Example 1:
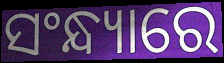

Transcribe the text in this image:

ସଂନ୍ଧ୍ଯାରେ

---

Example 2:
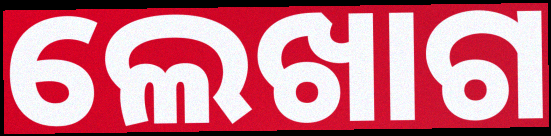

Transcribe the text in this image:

ଲେଖାଗ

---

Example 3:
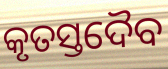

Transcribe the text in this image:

କୃତସ୍ତଦୈବ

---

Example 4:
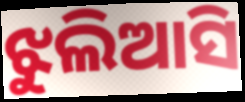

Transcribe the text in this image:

ଝୁଲିଆସି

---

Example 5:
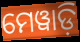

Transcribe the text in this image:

ମେୱାଡ଼ି